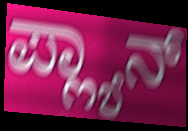
ಪ್ಲ್ಯಾನ್